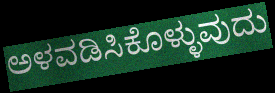
ಅಳವಡಿಸಿಕೊಳ್ಳುವುದು